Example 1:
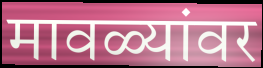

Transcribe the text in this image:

मावळ्यांवर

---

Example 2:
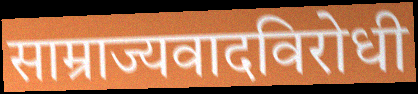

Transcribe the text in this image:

साम्राज्यवादविरोधी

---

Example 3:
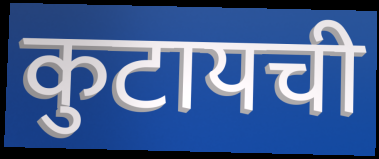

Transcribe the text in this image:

कुटायची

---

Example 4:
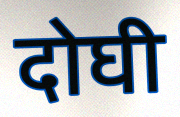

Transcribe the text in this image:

दोघी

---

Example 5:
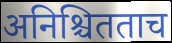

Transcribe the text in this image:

अनिश्चितताच